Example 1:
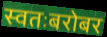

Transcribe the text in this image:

स्वतःबरोबर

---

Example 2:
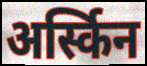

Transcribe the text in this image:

अर्स्किन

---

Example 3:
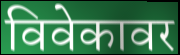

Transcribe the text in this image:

विवेकावर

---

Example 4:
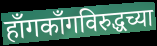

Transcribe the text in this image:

हाँगकाँगविरुद्धच्या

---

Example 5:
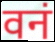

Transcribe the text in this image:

वनं